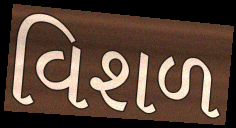
વિશળ